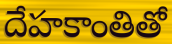
దేహకాంతితో